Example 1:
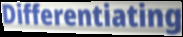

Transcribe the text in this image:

Differentiating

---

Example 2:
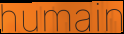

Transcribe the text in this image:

humain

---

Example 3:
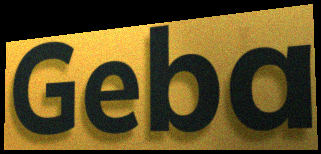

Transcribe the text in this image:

Geba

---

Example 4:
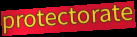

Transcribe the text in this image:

protectorate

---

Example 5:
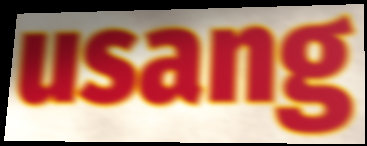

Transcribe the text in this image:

usang